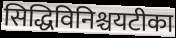
सिद्धिविनिश्चयटीका